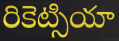
రికెట్సియా